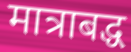
मात्राबद्ध